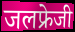
जलफ्रेजी